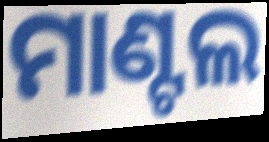
ମାଣ୍ଟଲ